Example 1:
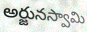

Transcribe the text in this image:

అర్జునస్వామి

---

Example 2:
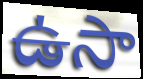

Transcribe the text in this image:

ఉసా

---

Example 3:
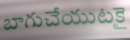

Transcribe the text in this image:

బాగుచేయుటకై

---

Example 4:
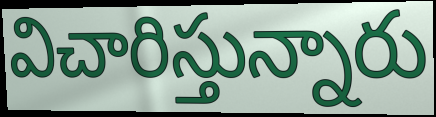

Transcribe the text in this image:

విచారిస్తున్నారు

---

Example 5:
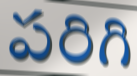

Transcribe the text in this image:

పరిగి